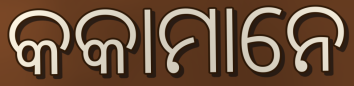
କକାମାନେ